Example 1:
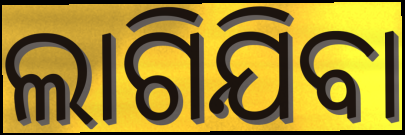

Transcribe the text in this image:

ଲାଗିଯିବା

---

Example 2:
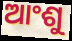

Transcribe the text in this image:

ଆଂଶୁ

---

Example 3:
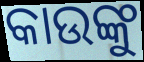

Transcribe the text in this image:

କାଉଙ୍କୁ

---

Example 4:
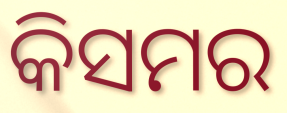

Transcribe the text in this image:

କିସମର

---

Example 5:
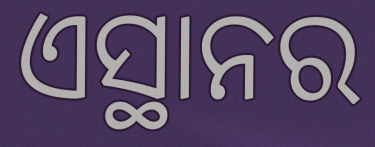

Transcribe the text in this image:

ଏସ୍ଥାନର